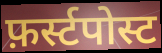
फ़र्स्टपोस्ट